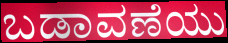
ಬಡಾವಣೆಯು